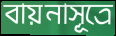
বায়নাসূত্রে